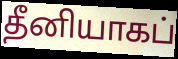
தீனியாகப்